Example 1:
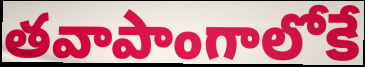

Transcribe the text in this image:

తవాపాంగాలోకే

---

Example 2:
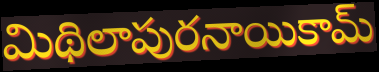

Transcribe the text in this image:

మిథిలాపురనాయికామ్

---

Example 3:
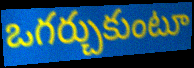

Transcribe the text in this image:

ఒగర్చుకుంటూ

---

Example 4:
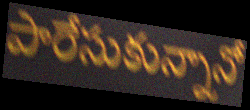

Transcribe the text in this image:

పారేసుకున్నానో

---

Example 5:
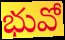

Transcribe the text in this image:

భువో